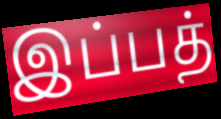
இப்பத்